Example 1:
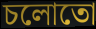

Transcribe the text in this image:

চলোতো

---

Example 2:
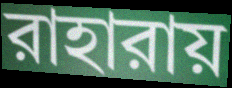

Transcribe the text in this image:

রাহারায়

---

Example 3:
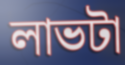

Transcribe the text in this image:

লাভটা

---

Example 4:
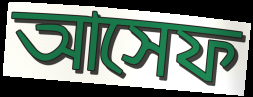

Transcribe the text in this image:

আসেফ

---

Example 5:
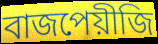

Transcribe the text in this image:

বাজপেয়ীজি